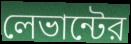
লেভান্টের